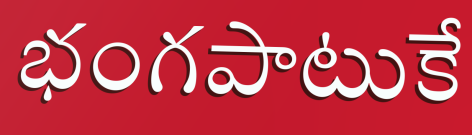
భంగపాటుకే